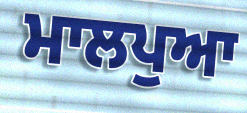
ਮਾਲਪੁਆ